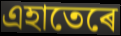
এহাতেৰে